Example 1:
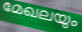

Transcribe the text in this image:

മേഖലയും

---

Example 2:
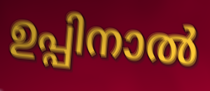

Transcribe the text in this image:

ഉപ്പിനാൽ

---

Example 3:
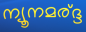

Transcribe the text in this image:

ന്യൂനമര്ദ്ദ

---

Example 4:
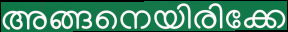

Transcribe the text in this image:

അങ്ങനെയിരിക്കേ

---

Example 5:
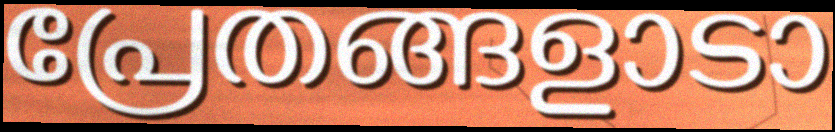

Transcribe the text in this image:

പ്രേതങ്ങളാടാ